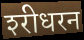
श्रीधरन